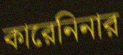
কারেনিনার